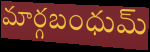
మార్గబంధుమ్